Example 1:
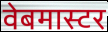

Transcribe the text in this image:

वेबमास्टर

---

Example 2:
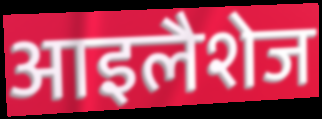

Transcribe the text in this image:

आइलैशेज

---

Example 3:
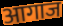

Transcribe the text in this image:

आगाज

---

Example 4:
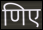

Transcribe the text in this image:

णिए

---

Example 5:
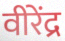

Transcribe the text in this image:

वीरेंद्र